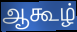
ஆகூழ்